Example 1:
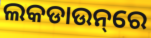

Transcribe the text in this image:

ଲକଡାଉନ୍‌ରେ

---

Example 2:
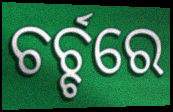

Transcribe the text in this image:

ଚର୍ଚ୍ଚରେ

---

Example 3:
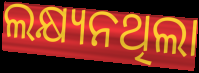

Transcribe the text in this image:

ଲକ୍ଷ୍ୟନଥିଲା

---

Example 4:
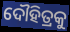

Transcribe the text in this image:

ଦୌହିତ୍ରକୁ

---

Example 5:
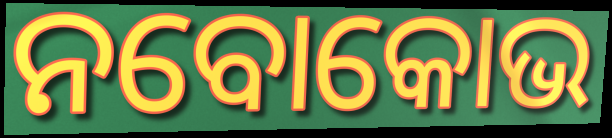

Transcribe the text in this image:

ନବୋକୋଭ